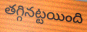
తగ్గినట్టయింది